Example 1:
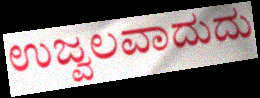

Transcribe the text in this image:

ಉಜ್ವಲವಾದುದು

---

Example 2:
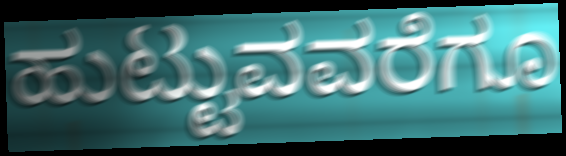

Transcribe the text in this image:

ಹುಟ್ಟುವವರೆಗೂ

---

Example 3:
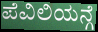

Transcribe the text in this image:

ಪೆವಿಲಿಯನ್ಗೆ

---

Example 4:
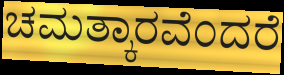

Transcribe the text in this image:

ಚಮತ್ಕಾರವೆಂದರೆ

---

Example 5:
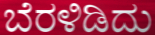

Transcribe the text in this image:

ಬೆರಳಿಡಿದು